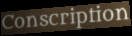
Conscription